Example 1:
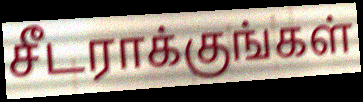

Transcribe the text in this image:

சீடராக்குங்கள்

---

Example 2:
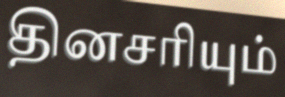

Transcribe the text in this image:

தினசரியும்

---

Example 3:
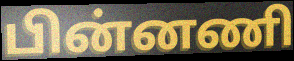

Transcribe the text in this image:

பின்னணி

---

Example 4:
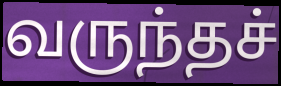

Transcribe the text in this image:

வருந்தச்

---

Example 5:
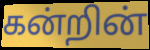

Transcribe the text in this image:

கன்றின்